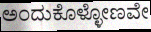
ಅಂದುಕೊಳ್ಳೋಣವೇ